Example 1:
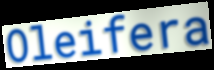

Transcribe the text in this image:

Oleifera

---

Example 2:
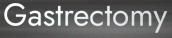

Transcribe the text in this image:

Gastrectomy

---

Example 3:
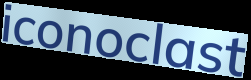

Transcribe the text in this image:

iconoclast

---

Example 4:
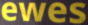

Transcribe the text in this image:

ewes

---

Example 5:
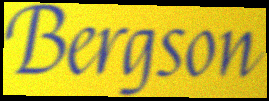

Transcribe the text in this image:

Bergson